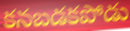
కనబడకపోడు